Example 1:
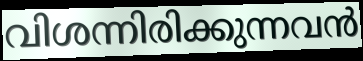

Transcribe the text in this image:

വിശന്നിരിക്കുന്നവൻ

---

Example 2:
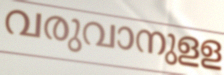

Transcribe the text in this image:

വരുവാനുളള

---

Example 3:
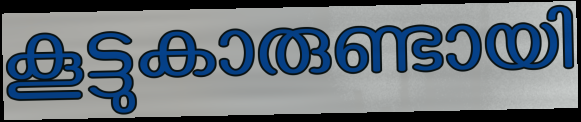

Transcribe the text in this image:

കൂട്ടുകാരുണ്ടായി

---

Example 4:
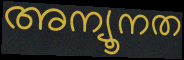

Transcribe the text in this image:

അന്യൂനത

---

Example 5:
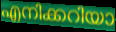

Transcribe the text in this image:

എനിക്കറിയാ